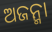
ଅଜନ୍ମା